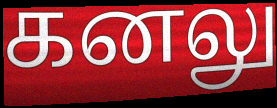
கனலு